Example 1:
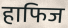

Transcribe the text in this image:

हाफिज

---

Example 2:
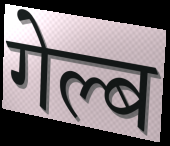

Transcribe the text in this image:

गेल्ब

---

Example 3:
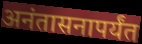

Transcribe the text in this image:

अनंतासनापर्यंत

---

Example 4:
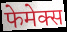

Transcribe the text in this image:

फेमेक्स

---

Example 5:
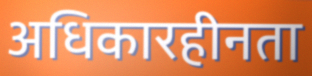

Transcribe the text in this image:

अधिकारहीनता